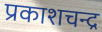
प्रकाशचन्द्र